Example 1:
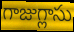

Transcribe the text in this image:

గాజుగ్లాసు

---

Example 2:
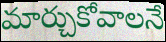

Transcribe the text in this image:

మార్చుకోవాలనే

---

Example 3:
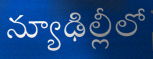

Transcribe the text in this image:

న్యూఢిల్లీలో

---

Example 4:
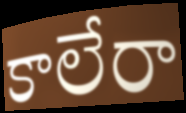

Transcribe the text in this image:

కాలేరా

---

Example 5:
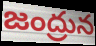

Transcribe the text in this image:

జంద్రున